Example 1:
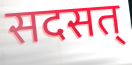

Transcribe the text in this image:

सदसत्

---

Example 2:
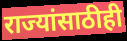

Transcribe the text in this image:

राज्यांसाठीही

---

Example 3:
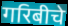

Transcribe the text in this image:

गरिबीचे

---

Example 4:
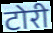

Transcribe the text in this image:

टोरी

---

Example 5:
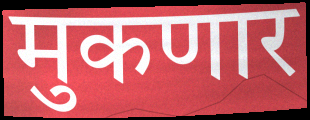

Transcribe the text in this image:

मुकणार